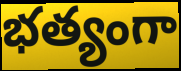
భత్యంగా